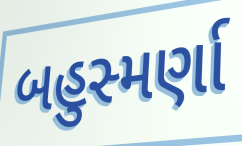
બહુસ્મર્ણા